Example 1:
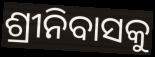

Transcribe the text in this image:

ଶ୍ରୀନିବାସକୁ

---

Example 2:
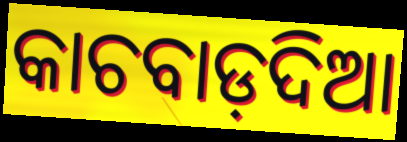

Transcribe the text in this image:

କାଚବାଡ଼ଦିଆ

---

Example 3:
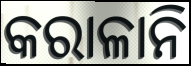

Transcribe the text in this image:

କରାଳାନି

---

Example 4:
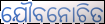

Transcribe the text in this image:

ଯୌବନୋଚିତ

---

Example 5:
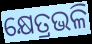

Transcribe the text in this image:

କ୍ଷେତ୍ରଭଳି